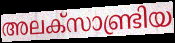
അലക്സാണ്ട്രിയ